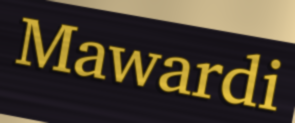
Mawardi